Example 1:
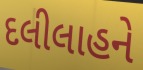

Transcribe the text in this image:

દલીલાહને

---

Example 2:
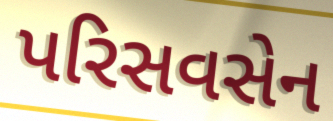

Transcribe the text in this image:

પરિસવસેન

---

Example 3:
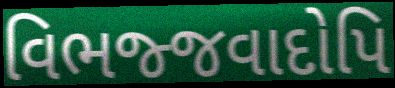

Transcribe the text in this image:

વિભજ્જવાદોપિ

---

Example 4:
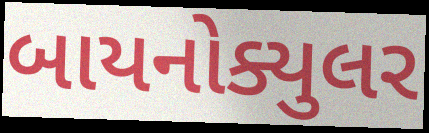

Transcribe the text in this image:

બાયનોક્યુલર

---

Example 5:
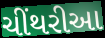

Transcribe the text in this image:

ચીંથરીઆ